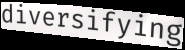
diversifying